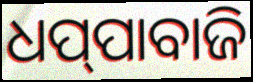
ଧପ୍‌ପାବାଜି